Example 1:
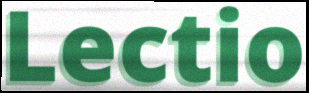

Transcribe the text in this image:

Lectio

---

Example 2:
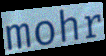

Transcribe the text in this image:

mohr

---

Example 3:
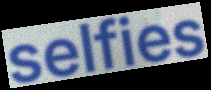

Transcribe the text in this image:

selfies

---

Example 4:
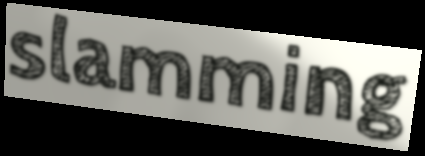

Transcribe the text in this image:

slamming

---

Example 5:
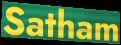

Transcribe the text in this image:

Satham